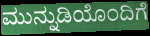
ಮುನ್ನುಡಿಯೊಂದಿಗೆ